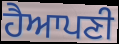
ਹੈਆਪਣੀ